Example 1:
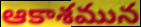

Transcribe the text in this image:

ఆకాశమున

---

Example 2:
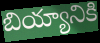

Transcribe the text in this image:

బియ్యానికి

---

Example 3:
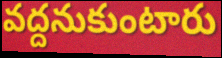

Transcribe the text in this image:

వద్దనుకుంటారు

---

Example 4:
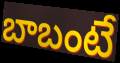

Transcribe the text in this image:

బాబంటే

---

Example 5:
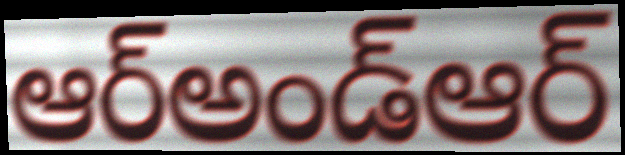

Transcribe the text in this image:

ఆర్అండ్ఆర్